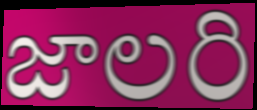
జాలరి